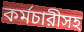
কর্মচারীসহ